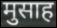
मुसाह